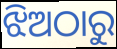
ଝିଅଠାରୁ